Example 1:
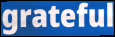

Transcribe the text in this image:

grateful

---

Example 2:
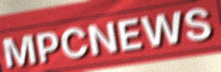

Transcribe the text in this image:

MPCNEWS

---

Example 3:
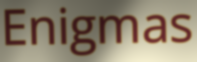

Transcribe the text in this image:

Enigmas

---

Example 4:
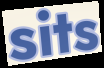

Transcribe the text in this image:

sits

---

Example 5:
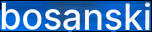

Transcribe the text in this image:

bosanski